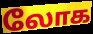
லோக